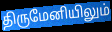
திருமேனியிலும்